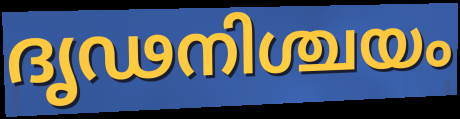
ദൃഢനിശ്ചയം